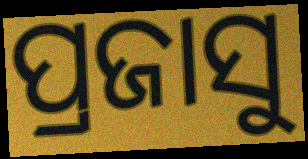
ପ୍ରଜାସୁ